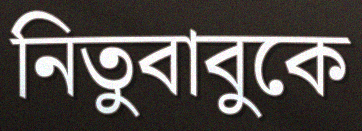
নিতুবাবুকে